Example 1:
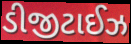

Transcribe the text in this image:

ડીજીટાઈઝ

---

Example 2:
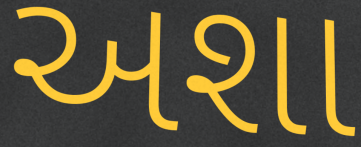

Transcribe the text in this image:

અશા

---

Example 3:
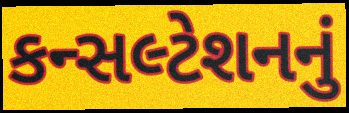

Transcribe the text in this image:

કન્સલ્ટેશનનું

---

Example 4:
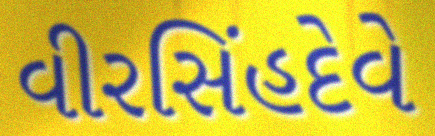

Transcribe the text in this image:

વીરસિંહદેવે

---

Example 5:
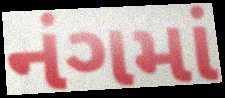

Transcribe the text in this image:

નંગમાં